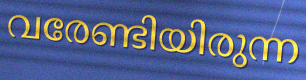
വരേണ്ടിയിരുന്ന